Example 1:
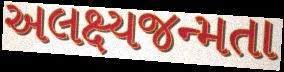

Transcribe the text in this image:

અલક્ષ્યજન્મતા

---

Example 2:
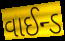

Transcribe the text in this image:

વાઈન્ડ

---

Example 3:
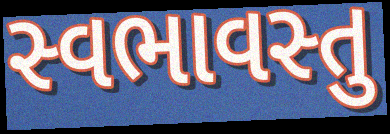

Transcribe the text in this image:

સ્વભાવસ્તુ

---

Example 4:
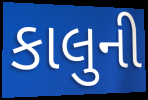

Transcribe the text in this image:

કાલુની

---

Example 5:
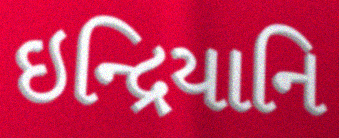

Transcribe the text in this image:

ઇન્દ્રિયાનિ